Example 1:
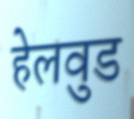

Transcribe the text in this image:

हेलवुड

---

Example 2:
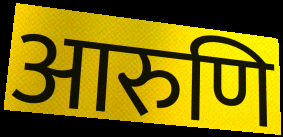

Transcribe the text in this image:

आरुणि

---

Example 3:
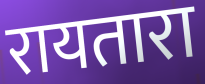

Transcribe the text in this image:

रायतारा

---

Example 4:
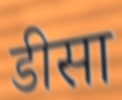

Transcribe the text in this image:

डीसा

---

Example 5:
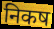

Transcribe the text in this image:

निकष